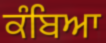
ਕੰਬਿਆ